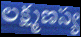
లక్ష్మణస్య